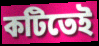
কটিতেই